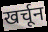
खर्चून